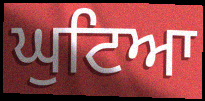
ਘੁਟਿਆ